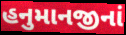
હનુમાનજીનાં